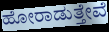
ಹೋರಾಡುತ್ತೇವೆ